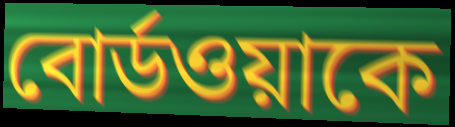
বোর্ডওয়াকে